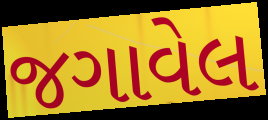
જગાવેલ